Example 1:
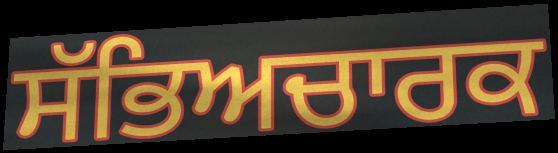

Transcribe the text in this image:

ਸੱਭਿਅਚਾਰਕ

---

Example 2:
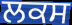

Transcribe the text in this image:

ਲਕਸ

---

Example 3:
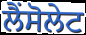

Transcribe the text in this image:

ਲੈਂਸੋਲੇਟ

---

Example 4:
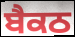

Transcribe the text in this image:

ਬੈਕਠ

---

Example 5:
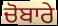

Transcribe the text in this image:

ਚੋਬਾਰੇ